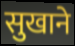
सुखाने